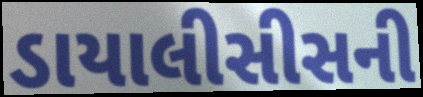
ડાયાલીસીસની